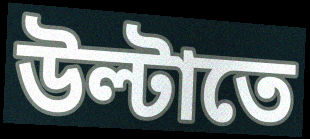
উল্টাতে